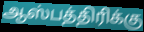
ஆஸ்பத்திரிக்கு